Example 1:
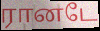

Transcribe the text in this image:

ரானடே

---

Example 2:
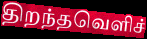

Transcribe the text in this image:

திறந்தவெளிச்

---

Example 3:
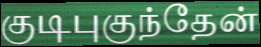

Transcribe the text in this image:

குடிபுகுந்தேன்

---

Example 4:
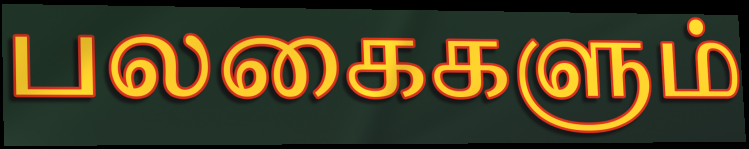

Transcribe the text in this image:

பலகைகளும்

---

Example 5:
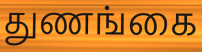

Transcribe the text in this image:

துணங்கை